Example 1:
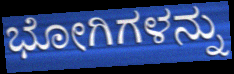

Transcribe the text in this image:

ಭೋಗಿಗಳನ್ನು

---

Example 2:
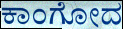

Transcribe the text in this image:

ಕಾಂಗೋದ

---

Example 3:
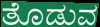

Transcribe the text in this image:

ತೊಡುವ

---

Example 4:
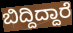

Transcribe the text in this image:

ಬಿದ್ದಿದ್ದಾರೆ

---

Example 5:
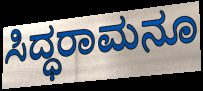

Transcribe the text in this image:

ಸಿದ್ಧರಾಮನೂ